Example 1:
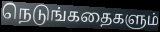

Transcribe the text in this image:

நெடுங்கதைகளும்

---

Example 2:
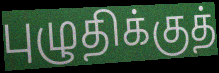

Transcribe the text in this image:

புழுதிக்குத்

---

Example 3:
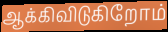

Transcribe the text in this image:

ஆக்கிவிடுகிறோம்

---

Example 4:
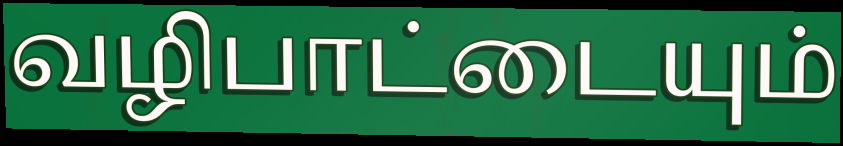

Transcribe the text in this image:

வழிபாட்டையும்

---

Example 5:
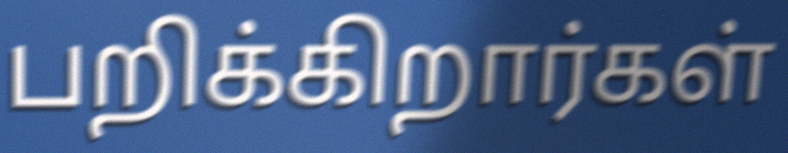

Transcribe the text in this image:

பறிக்கிறார்கள்